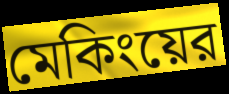
মেকিংয়ের